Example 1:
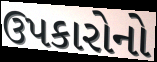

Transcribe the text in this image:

ઉપકારોનો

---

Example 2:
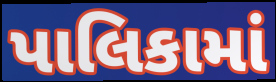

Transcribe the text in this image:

પાલિકામાં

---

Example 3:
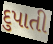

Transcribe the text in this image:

દુપાતી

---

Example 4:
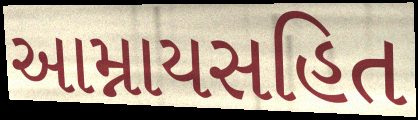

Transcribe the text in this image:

આમ્નાયસહિત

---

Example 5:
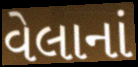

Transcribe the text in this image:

વેલાનાં